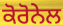
ਕੋਰੋਨੇਲ